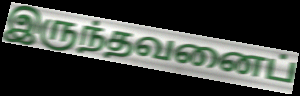
இருந்தவனைப்